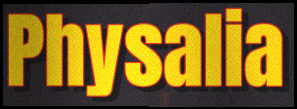
Physalia